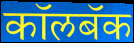
कॉलबॅक